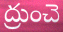
ద్రుంచె